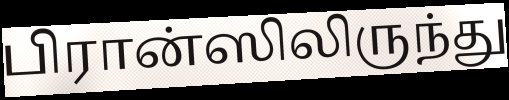
பிரான்ஸிலிருந்து